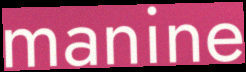
manine